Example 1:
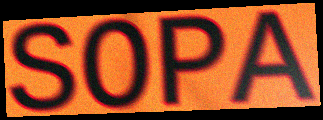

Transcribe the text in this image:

SOPA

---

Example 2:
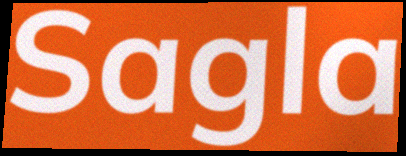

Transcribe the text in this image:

Sagla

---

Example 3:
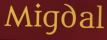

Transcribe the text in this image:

Migdal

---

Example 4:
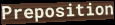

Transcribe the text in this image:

Preposition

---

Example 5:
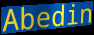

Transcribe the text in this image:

Abedin